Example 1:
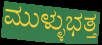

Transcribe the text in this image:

ಮುಳ್ಳುಭತ್ತ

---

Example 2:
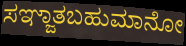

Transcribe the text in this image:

ಸಞ್ಜಾತಬಹುಮಾನೋ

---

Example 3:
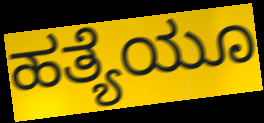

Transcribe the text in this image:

ಹತ್ಯೆಯೂ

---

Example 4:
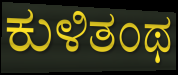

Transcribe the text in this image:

ಕುಳಿತಂಥ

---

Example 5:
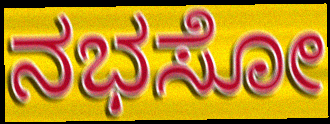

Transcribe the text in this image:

ನಭಸೋ